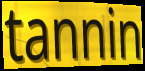
tannin